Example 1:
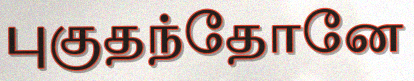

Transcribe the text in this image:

புகுதந்தோனே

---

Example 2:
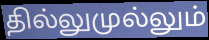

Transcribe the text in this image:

தில்லுமுல்லும்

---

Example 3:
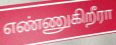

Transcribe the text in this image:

எண்ணுகிறீரா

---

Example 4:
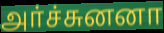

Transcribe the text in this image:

அர்ச்சுனனா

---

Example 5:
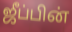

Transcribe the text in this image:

ஜீப்பின்